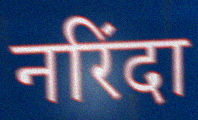
नरिंदा